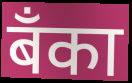
बॅंका